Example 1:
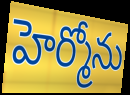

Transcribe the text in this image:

హెర్మోను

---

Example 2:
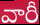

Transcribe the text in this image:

వారీ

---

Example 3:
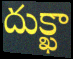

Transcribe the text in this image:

దుక్ఖా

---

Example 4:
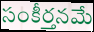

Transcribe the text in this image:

సంకీర్తనమే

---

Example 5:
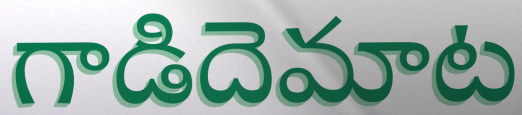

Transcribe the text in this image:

గాడిదెమాట